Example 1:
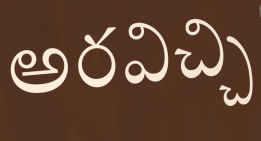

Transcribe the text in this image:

అరవిచ్చి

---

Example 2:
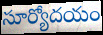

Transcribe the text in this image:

సూర్యోదయం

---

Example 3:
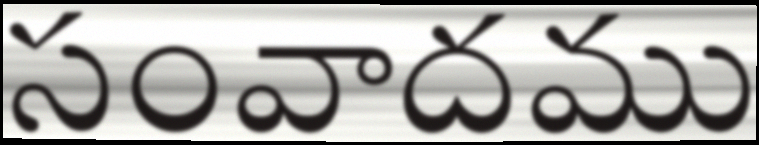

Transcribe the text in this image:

సంవాదము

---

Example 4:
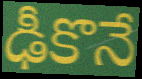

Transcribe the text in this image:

ఢీకొనే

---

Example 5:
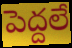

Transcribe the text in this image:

పెద్దలే